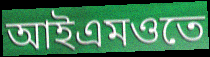
আইএমওতে